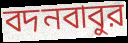
বদনবাবুর